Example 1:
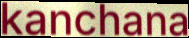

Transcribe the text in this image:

kanchana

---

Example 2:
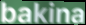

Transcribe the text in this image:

bakina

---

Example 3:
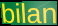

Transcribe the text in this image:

bilan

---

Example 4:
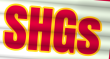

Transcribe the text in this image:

SHGs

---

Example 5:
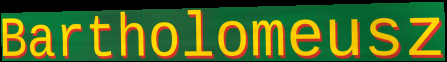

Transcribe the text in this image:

Bartholomeusz